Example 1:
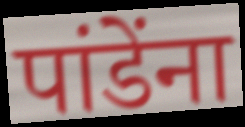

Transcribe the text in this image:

पांडेंना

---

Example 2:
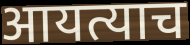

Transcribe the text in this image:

आयत्याच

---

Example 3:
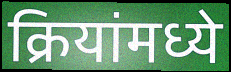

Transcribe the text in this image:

क्रियांमध्ये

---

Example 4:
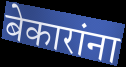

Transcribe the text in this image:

बेकारांना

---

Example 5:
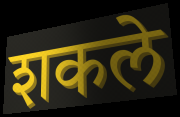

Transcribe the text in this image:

शकले